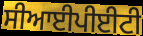
ਸੀਆਈਪੀਈਟੀ